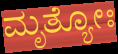
ಮೃತ್ಯೋಃ